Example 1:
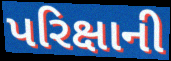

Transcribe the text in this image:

પરિક્ષાની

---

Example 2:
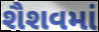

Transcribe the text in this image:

શૈશવમાં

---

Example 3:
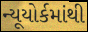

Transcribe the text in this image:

ન્યૂયોર્કમાંથી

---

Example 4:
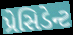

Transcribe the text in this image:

પ્રેસિડેન્ટ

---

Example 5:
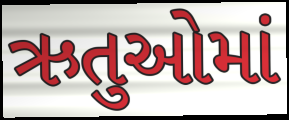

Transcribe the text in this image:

ઋતુઓમાં